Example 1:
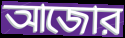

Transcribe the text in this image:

আজোর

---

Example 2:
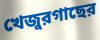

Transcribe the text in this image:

খেজুরগাছের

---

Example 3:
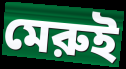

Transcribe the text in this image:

মেরুই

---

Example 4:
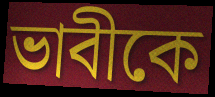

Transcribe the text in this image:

ভাবীকে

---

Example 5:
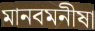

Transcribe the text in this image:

মানবমনীষা